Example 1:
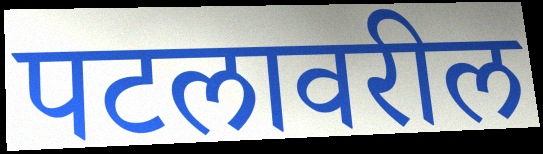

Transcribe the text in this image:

पटलावरील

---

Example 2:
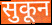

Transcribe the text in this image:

सुकून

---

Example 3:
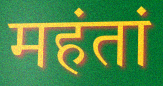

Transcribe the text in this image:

महंतां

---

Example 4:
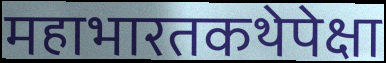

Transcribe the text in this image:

महाभारतकथेपेक्षा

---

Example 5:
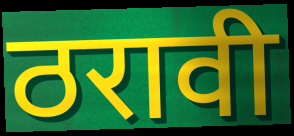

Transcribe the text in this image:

ठरावी